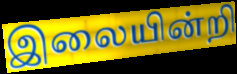
இலையின்றி